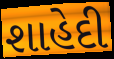
શાહેદી